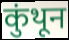
कुंथून